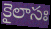
కైలాసః